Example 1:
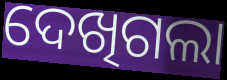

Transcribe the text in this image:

ଦେଖିଗଲା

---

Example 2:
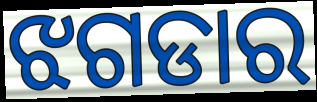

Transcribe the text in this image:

ଝଗଡାର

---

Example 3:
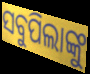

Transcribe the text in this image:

ସବୁପିଲାଙ୍କୁ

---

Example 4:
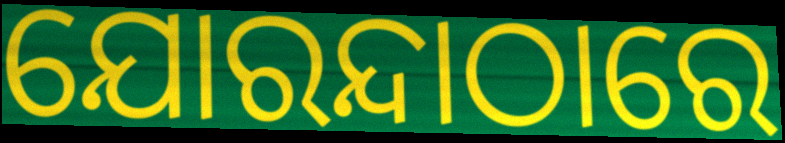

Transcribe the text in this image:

ଯୋରନ୍ଦାଠାରେ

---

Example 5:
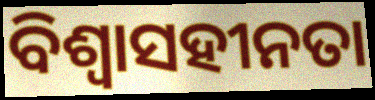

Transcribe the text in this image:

ବିଶ୍ୱାସହୀନତା